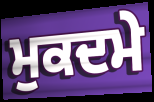
ਮੁਕਦਮੇ